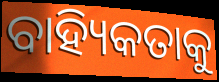
ବାହ୍ୟିକତାକୁ